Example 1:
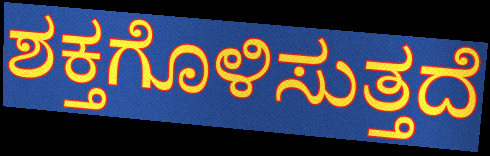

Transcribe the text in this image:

ಶಕ್ತಗೊಳಿಸುತ್ತದೆ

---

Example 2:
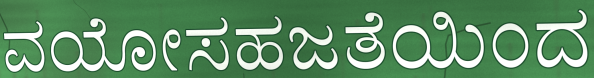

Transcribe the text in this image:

ವಯೋಸಹಜತೆಯಿಂದ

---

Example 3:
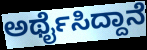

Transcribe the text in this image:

ಅರ್ಥೈಸಿದ್ದಾನೆ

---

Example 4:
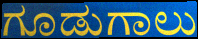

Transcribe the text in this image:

ಗೂಡುಗಾಲು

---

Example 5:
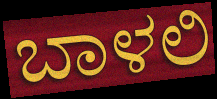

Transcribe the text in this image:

ಬಾಳಲಿ